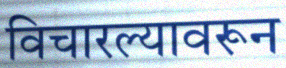
विचारल्यावरून